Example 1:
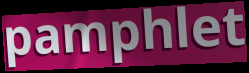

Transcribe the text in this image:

pamphlet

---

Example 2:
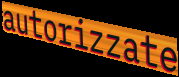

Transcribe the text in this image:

autorizzate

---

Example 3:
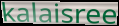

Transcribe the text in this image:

kalaisree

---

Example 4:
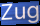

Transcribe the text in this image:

Zug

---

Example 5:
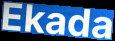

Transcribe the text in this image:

Ekada